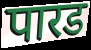
पारड